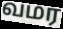
வமர